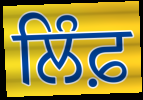
ਲਿੰਫ਼